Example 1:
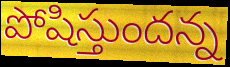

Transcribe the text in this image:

పోషిస్తుందన్న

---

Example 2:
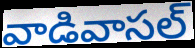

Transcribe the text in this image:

వాడివాసల్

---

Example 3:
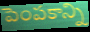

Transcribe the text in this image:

పెంపకాన్ని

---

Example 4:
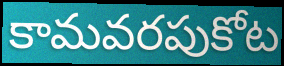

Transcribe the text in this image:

కామవరపుకోట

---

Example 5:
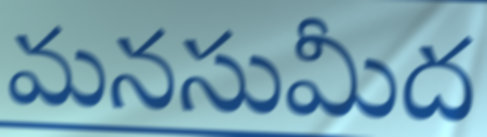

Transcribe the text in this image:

మనసుమీద